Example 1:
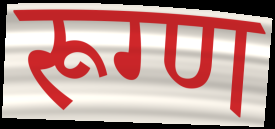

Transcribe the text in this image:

रूग्ण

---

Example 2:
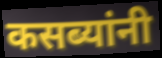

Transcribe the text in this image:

कसब्यांनी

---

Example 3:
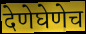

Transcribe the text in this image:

देणेघेणेच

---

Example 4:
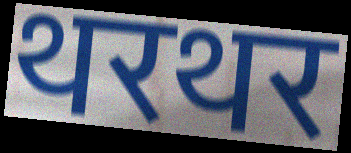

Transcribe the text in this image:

थरथर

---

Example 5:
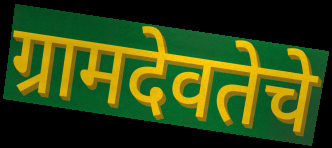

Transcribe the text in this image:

ग्रामदेवतेचे